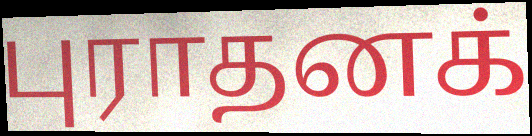
புராதனக்